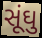
સૂંઘુ